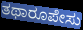
ತಥಾರೂಪೇಸು